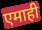
एमाही